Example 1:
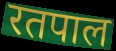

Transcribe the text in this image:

रतपाल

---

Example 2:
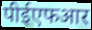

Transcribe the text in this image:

पीईएफआर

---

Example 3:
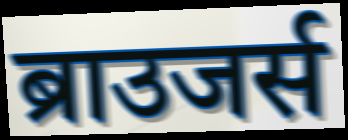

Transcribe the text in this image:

ब्राउजर्स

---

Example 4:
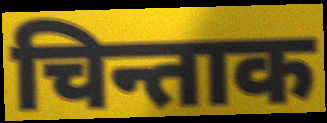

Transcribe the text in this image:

चिन्ताक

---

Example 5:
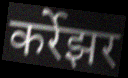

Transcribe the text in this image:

कर्रेझर